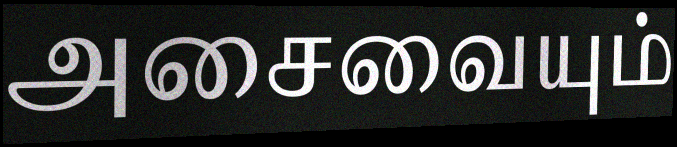
அசைவையும்